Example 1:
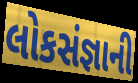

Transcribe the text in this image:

લોકસંજ્ઞાની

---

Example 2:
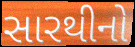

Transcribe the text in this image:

સારથીનો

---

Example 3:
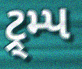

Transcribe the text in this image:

ટ્ર્મ્પ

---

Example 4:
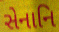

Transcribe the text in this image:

સેનાનિ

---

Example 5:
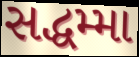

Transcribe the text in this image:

સદ્ધમ્મા